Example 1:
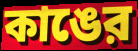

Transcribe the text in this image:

কাঙের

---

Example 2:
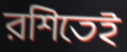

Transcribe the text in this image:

রশিতেই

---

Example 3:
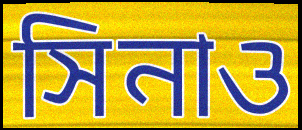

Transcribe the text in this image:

সিনাও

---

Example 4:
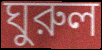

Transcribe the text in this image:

ঘুরুল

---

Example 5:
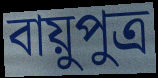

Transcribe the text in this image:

বায়ুপুত্র